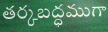
తర్కబద్ధముగా